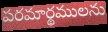
పరమార్థములను